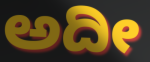
ಅದೀ